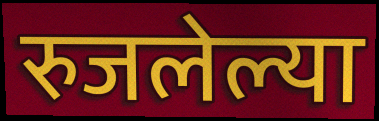
रुजलेल्या